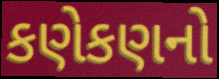
કણેકણનો